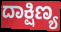
ದಾಕ್ಷಿಣ್ಯ